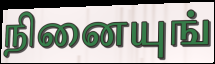
நினையுங்